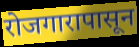
रोजगारापासून